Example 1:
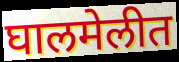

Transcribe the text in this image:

घालमेलीत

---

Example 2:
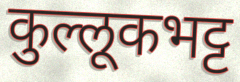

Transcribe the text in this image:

कुल्लूकभट्ट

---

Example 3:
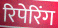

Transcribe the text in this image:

रिपेरिंग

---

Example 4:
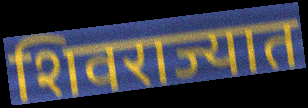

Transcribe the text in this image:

शिवराज्यात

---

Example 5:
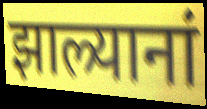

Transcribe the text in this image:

झाल्यानां